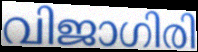
വിജാഗിരി